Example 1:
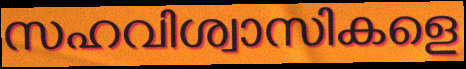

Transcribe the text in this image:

സഹവിശ്വാസികളെ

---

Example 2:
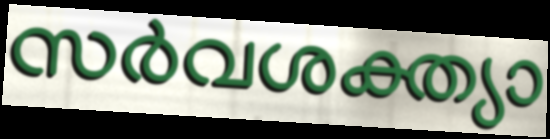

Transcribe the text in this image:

സർവശക്ത്യാ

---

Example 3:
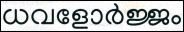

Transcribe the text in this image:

ധവളോർജ്ജം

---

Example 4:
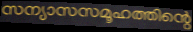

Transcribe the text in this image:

സന്യാസസമൂഹത്തിന്റെ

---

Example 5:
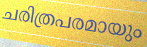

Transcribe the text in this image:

ചരിത്രപരമായും